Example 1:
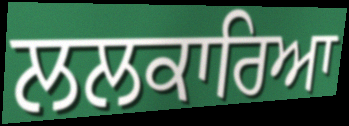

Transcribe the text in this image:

ਲਲਕਾਰਿਆ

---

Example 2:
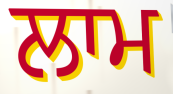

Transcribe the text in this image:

ਲਾਮ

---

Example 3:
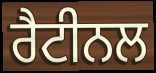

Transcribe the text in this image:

ਰੈਟੀਨਲ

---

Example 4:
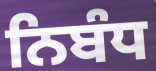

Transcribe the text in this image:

ਨਿਬੰਧ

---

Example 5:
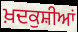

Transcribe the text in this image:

ਖ਼ਦਕੁਸ਼ੀਆਂ